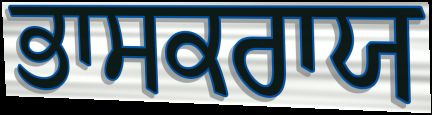
ਭਾਸਕਰਾਯ